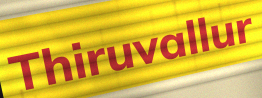
Thiruvallur